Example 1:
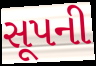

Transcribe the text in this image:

સૂપની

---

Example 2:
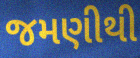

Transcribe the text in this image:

જમણીથી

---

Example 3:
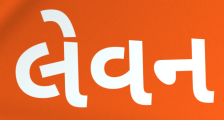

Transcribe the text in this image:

લેવન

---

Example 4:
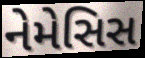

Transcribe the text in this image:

નેમેસિસ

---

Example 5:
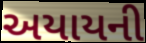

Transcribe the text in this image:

અયાયની